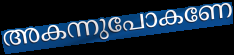
അകന്നുപോകണേ